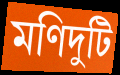
মণিদুটি